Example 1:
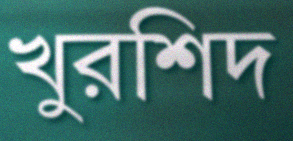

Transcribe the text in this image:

খুরশিদ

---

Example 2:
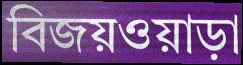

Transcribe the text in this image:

বিজয়ওয়াড়া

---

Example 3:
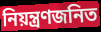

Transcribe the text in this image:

নিয়ন্ত্রণজনিত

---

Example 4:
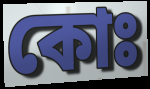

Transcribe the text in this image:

কোঃ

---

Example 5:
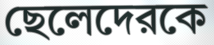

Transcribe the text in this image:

ছেলেদেরকে